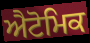
ਐਟੋਮਿਕ